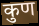
कुण